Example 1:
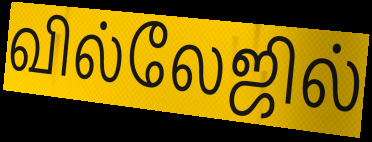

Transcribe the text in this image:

வில்லேஜில்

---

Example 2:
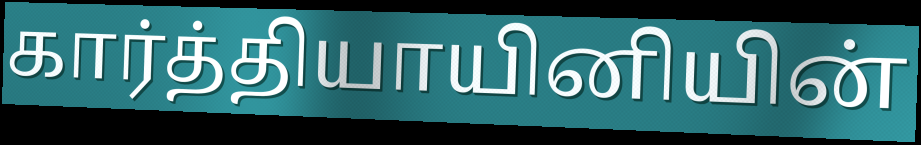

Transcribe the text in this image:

கார்த்தியாயினியின்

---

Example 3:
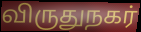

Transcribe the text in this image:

விருதுநகர்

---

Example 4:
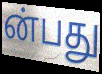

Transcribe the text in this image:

ன்பது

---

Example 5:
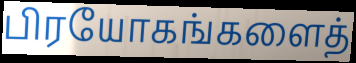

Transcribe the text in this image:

பிரயோகங்களைத்